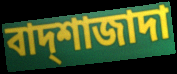
বাদ্শাজাদা